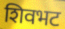
शिवभट